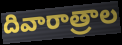
దివారాత్రాల